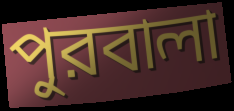
পুরবালা